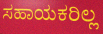
ಸಹಾಯಕರಿಲ್ಲ